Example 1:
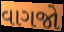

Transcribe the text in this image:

વાગજો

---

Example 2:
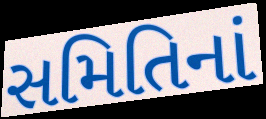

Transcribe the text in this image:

સમિતિનાં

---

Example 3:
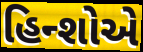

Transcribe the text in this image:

હિન્શોએ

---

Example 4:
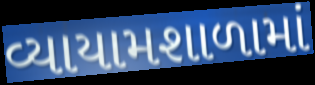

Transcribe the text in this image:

વ્યાયામશાળામાં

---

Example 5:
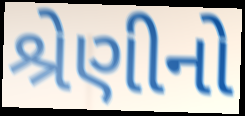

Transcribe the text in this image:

શ્રેણીનો